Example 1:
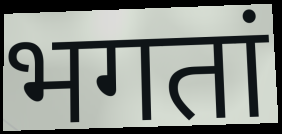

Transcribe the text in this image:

भगतां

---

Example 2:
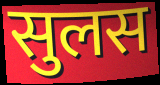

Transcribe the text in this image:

सुलस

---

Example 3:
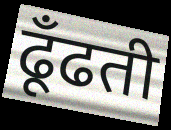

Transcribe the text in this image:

ढूँढती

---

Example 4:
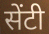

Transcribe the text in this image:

सेंटी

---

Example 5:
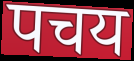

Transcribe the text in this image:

पचय